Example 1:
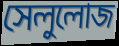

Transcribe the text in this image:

সেলুলোজ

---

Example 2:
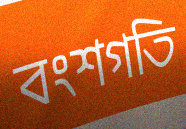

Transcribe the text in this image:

বংশগতি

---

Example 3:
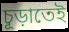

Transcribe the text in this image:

চূড়াতেই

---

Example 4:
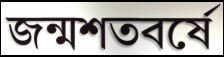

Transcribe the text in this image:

জন্মশতবর্ষে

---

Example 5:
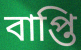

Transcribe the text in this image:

বাপ্তি